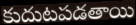
కుదుటపడతాయి